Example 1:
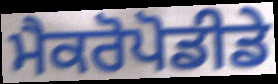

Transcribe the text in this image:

ਮੈਕਰੋਪੋਡੀਡੇ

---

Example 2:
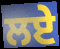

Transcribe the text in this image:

ਲਏੇ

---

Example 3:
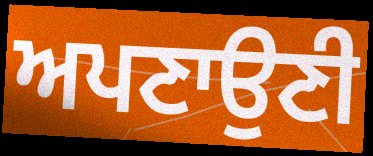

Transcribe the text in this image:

ਅਪਣਾਉਣੀ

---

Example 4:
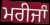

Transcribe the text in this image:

ਮਰੀਜਾੰ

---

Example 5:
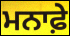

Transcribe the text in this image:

ਮਨਾਫ਼ੇ